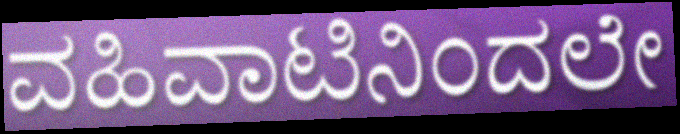
ವಹಿವಾಟಿನಿಂದಲೇ